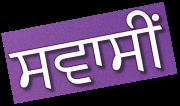
ਸਵਾਸੀਂ